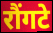
रौंगटे